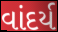
વાંદર્ય